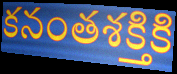
కనంతశక్తికి